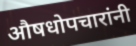
औषधोपचारांनी